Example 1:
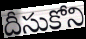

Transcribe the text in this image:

దీసుకోని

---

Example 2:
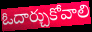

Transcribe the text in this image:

ఓదార్చుకోవాలి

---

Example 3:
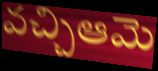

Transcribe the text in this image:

వచ్చిఆమె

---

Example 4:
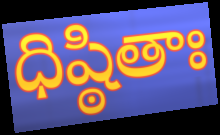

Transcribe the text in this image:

ధిష్ఠితాః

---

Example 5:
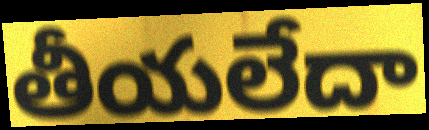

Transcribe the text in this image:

తీయలేదా